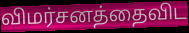
விமர்சனத்தைவிட